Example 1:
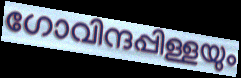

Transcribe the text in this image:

ഗോവിന്ദപ്പിള്ളയും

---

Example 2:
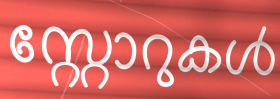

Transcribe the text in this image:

സ്റ്റോറുകൾ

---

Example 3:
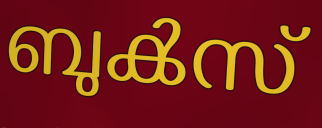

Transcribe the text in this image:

ബുൿസ്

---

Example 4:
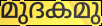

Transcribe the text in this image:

മുദകമു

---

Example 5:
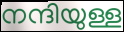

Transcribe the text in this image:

നന്ദിയുള്ള